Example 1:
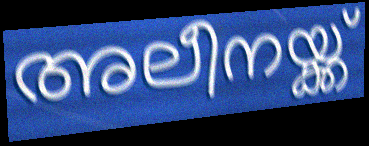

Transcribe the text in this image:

അലീനയ്ക്ക്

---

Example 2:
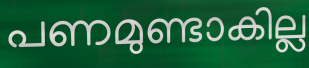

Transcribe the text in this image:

പണമുണ്ടാകില്ല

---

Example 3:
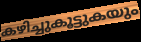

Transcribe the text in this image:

കഴിച്ചുകൂട്ടുകയും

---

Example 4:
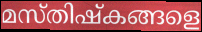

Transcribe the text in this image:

മസ്തിഷ്കങ്ങളെ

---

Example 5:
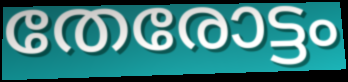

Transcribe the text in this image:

തേരോട്ടം